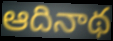
ఆదినాథ